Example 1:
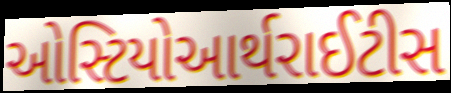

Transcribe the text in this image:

ઓસ્ટિયોઆર્થરાઈટીસ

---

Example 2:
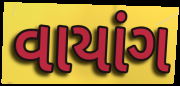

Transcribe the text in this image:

વાયાંગ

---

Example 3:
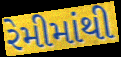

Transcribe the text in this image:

રેમીમાંથી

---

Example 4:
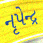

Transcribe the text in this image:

નૃપેન્દ્ર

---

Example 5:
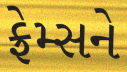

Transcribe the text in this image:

ફ્રેમ્સને